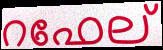
റഫേല്